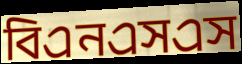
বিএনএসএস